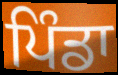
ਪਿੰਡਾ